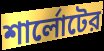
শার্লোটের